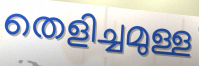
തെളിച്ചമുള്ള